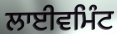
ਲਾਈਵਮਿੰਟ